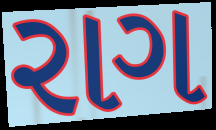
રાગ